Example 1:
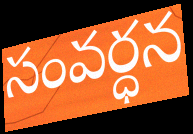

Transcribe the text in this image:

సంవర్ధన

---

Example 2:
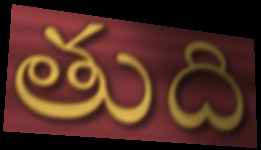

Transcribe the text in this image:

తుది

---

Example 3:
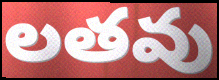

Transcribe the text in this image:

లతవు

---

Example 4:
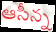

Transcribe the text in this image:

ఆసీన్న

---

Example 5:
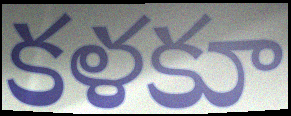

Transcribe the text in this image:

కళకూ